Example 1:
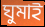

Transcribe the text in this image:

ঘুমাই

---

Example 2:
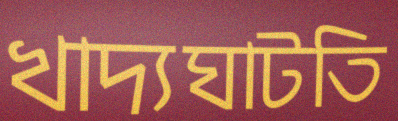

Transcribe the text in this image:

খাদ্যঘাটতি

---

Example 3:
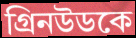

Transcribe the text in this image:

গ্রিনউডকে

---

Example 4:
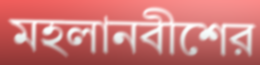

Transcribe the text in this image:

মহলানবীশের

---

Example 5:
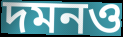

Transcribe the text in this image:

দমনও